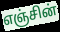
எஞ்சின்